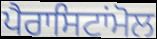
ਪੈਰਾਸਿਟਾਂਮੋਲ